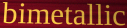
bimetallic